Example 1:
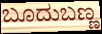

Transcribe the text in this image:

ಬೂದುಬಣ್ಣ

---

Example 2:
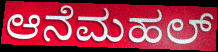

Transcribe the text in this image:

ಆನೆಮಹಲ್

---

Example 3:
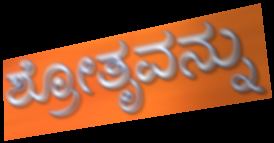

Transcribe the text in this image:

ಶ್ರೋತೃವನ್ನು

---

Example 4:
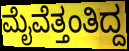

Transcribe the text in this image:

ಮೈವೆತ್ತಂತಿದ್ದ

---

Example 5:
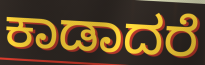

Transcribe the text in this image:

ಕಾಡಾದರೆ